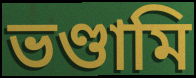
ভণ্ডামি